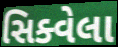
સિક્વેલા